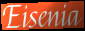
Eisenia